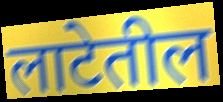
लाटेतील